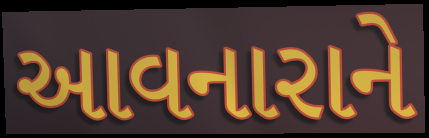
આવનારાને